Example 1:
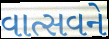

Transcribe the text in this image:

વાત્સવને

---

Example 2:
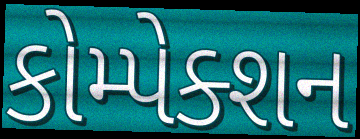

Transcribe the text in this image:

કોમ્પેક્શન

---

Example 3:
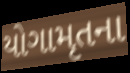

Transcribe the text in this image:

યોગામૃતના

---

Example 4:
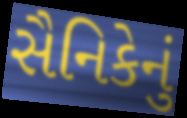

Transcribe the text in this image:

સૈનિકેનું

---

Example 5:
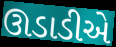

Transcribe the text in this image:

ઊડાડીએ